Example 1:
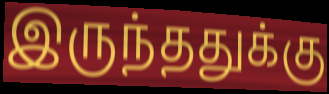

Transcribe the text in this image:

இருந்ததுக்கு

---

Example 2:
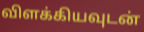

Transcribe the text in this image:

விளக்கியவுடன்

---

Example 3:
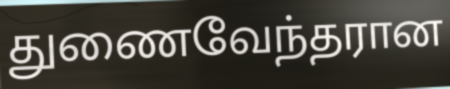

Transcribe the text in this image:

துணைவேந்தரான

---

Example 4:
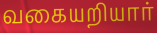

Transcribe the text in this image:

வகையறியார்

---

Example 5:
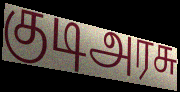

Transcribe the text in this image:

குடிஅரசு